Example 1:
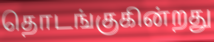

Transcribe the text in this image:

தொடங்குகின்றது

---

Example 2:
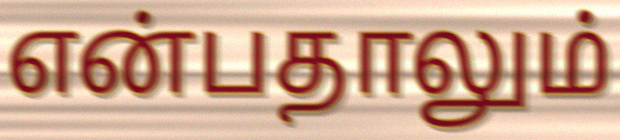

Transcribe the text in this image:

என்பதாலும்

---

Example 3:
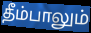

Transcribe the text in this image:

தீம்பாலும்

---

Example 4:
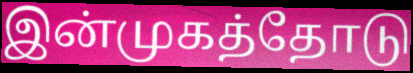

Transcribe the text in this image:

இன்முகத்தோடு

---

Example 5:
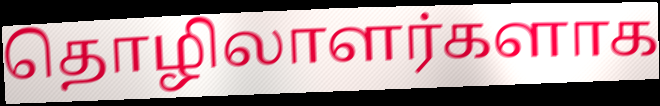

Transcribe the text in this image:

தொழிலாளர்களாக